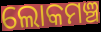
ଲୋକମଞ୍ଚ